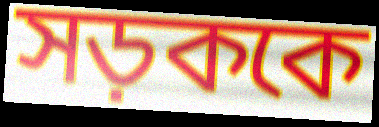
সড়ককে